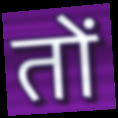
तों